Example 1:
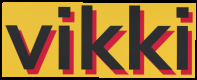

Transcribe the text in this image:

vikki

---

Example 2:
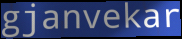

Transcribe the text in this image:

gjanvekar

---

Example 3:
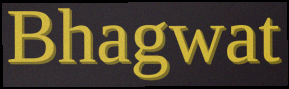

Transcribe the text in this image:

Bhagwat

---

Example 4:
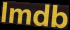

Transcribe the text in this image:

Imdb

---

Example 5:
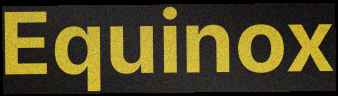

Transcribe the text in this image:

Equinox